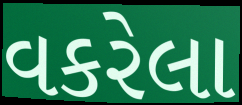
વકરેલા